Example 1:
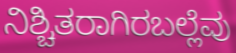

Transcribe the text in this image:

ನಿಶ್ಚಿತರಾಗಿರಬಲ್ಲೆವು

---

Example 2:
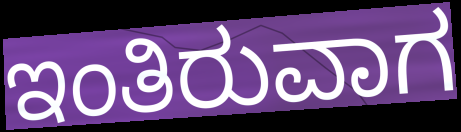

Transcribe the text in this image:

ಇಂತಿರುವಾಗ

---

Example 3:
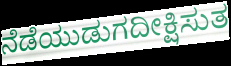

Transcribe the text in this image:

ನೆಡೆಯುಡುಗದೀಕ್ಷಿಸುತ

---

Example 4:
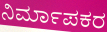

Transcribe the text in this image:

ನಿರ್ಮಾಪಕರ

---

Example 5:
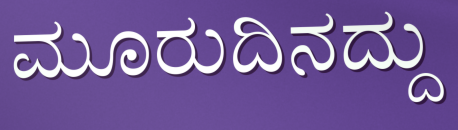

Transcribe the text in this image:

ಮೂರುದಿನದ್ದು